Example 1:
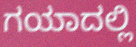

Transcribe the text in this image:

ಗಯಾದಲ್ಲಿ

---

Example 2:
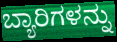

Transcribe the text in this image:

ಬ್ಯಾರಿಗಳನ್ನು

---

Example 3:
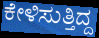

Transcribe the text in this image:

ಕೇಳಿಸುತ್ತಿದ್ದ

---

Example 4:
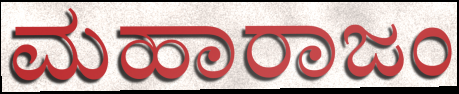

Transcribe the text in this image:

ಮಹಾರಾಜಂ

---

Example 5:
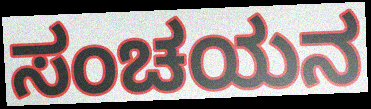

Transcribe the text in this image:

ಸಂಚಯನ